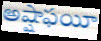
అష్షాఫయీ